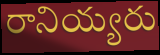
రానియ్యరు